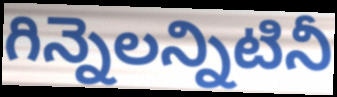
గిన్నెలన్నిటినీ